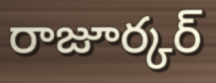
రాజూర్కర్